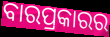
ବାରପ୍ରକାରର